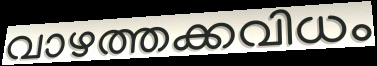
വാഴത്തക്കവിധം